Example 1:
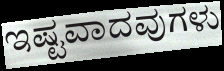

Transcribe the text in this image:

ಇಷ್ಟವಾದವುಗಳು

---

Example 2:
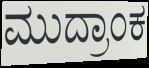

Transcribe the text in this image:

ಮುದ್ರಾಂಕ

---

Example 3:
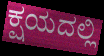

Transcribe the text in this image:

ಕ್ಷಯದಲ್ಲಿ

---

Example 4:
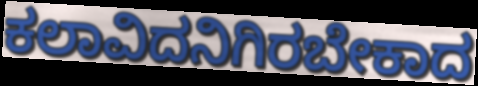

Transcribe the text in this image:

ಕಲಾವಿದನಿಗಿರಬೇಕಾದ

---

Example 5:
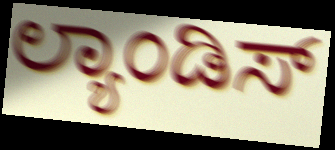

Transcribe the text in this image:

ಲ್ಯಾಂಡಿಸ್